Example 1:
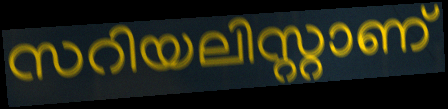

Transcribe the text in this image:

സറിയലിസ്റ്റാണ്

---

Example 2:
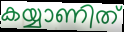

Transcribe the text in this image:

കയ്യാണിത്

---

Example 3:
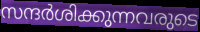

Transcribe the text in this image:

സന്ദർശിക്കുന്നവരുടെ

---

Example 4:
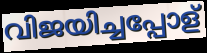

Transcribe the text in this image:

വിജയിച്ചപ്പോള്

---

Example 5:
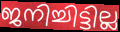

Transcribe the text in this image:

ജനിച്ചിട്ടില്ല